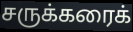
சருக்கரைக்